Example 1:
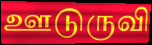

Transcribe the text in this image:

ஊடுருவி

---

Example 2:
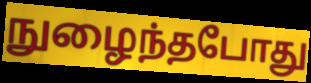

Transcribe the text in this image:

நுழைந்தபோது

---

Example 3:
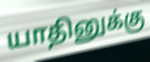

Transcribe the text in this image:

யாதினுக்கு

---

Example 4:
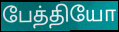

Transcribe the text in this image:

பேத்தியோ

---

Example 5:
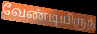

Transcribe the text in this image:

வேண்டியிருந்